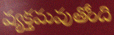
వ్యక్తమవుతోంది